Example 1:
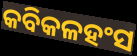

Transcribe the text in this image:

କବିକଳହଂସ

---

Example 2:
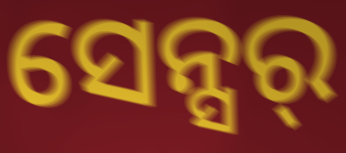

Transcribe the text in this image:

ସେନ୍ସର୍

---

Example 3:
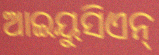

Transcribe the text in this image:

ଆଇୟୁସିଏନ୍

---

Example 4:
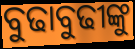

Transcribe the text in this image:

ବୁଢାବୁଢୀଙ୍କୁ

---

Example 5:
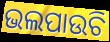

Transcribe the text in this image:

ଭଲପାଉଚି